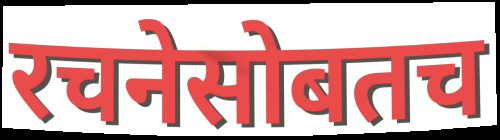
रचनेसोबतच